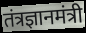
तंत्रज्ञानमंत्री